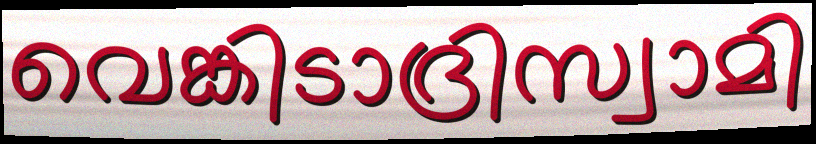
വെങ്കിടാദ്രിസ്വാമി